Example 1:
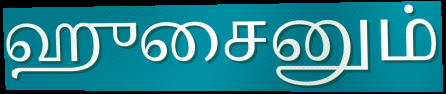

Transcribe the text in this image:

ஹுசைனும்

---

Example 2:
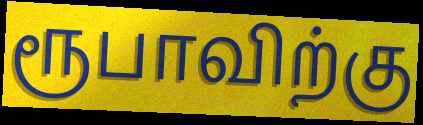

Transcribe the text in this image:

ரூபாவிற்கு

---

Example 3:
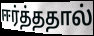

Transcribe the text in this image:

ஈர்த்ததால்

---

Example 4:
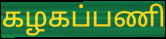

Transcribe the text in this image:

கழகப்பணி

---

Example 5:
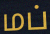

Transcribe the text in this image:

மப்